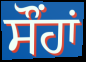
ਸੌਂਹਾਂ